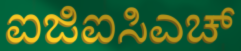
ಐಜಿಐಸಿಎಚ್